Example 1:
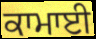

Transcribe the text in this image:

ਕਾਮਾਈ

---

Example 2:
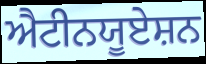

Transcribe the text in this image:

ਐਟੀਨਯੂਏਸ਼ਨ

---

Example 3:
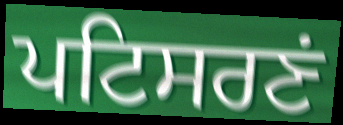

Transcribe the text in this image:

ਪਟਿਸਰਣਂ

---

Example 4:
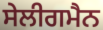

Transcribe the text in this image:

ਸੇਲੀਗਮੈਨ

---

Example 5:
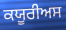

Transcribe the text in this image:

ਕਯੂਰੀਅਸ